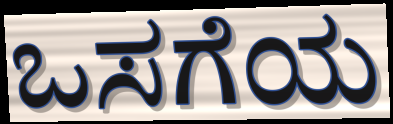
ಒಸಗೆಯ